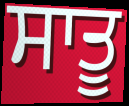
ਸਾਤੂ